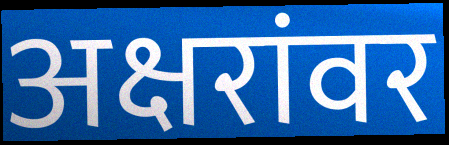
अक्षरांवर